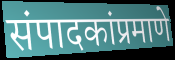
संपादकांप्रमाणे